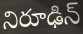
నిరూఢిన్